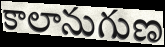
కాలానుగుణ